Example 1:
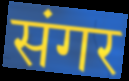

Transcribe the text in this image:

संगर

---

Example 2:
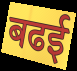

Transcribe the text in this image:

बढई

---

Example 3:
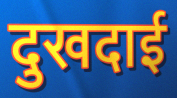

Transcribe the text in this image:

दुखदाई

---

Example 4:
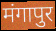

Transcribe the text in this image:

मंगापुर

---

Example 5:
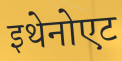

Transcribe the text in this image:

इथेनोएट